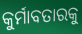
କୁର୍ମାବତାରକୁ